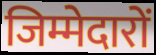
जिम्मेदारों